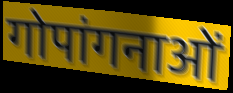
गोपांगनाओं